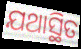
ଯଥାସ୍ଥିତ